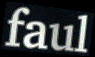
faul